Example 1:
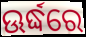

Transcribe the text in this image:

ଊର୍ଦ୍ଧରେ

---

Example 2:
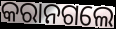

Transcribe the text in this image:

କରାନଗଲେ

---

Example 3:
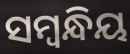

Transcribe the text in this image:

ସମ୍ଵନ୍ଧିୟ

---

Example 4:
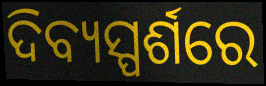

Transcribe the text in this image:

ଦିବ୍ୟସ୍ପର୍ଶରେ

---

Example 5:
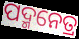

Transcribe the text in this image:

ପଦ୍ମନେତ୍ର